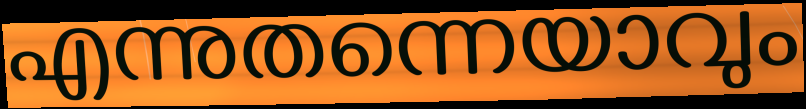
എന്നുതന്നെയാവും